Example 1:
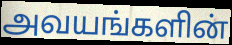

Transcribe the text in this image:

அவயங்களின்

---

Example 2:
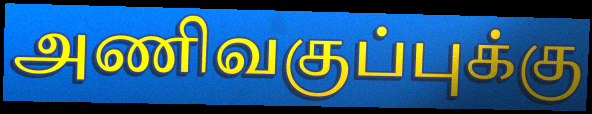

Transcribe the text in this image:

அணிவகுப்புக்கு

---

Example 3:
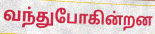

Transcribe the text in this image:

வந்துபோகின்றன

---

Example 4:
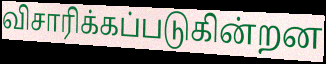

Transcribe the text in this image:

விசாரிக்கப்படுகின்றன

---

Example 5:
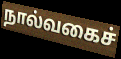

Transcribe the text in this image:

நால்வகைச்